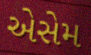
એસેમ